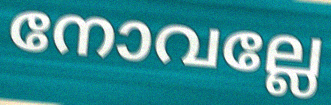
നോവല്ലേ